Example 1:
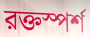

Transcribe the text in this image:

রক্তস্পর্শ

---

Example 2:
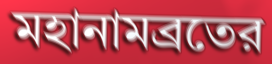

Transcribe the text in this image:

মহানামব্রতের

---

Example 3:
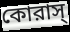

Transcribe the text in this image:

কোরাস্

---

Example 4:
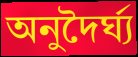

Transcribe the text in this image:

অনুদৈর্ঘ্য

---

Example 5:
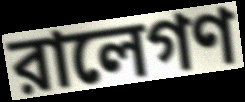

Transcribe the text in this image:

রালেগণ